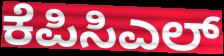
ಕೆಪಿಸಿಎಲ್